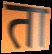
ता